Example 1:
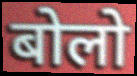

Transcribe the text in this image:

बोलो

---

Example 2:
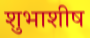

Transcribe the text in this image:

शुभाशीष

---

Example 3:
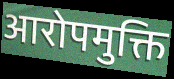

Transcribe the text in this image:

आरोपमुक्ति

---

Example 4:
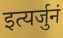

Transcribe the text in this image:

इत्यर्जुनं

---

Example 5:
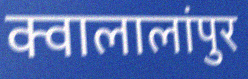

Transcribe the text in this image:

क्वालालांपुर